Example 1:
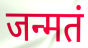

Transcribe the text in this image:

जन्मतं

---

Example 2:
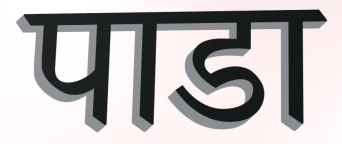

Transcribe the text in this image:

पाडा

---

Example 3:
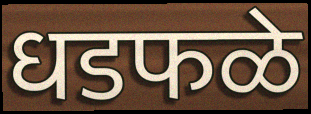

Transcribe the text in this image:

धडफळे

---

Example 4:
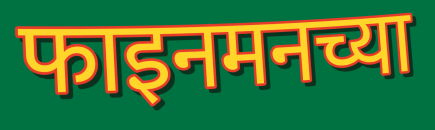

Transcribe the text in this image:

फाइनमनच्या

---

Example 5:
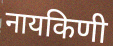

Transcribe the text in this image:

नायकिणी